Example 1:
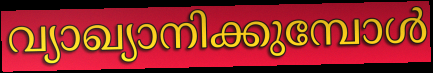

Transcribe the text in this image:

വ്യാഖ്യാനിക്കുമ്പോൾ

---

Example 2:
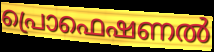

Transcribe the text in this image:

പ്രൊഫെഷണൽ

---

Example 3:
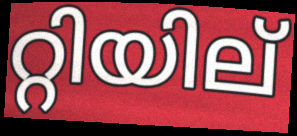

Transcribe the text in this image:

റ്റിയില്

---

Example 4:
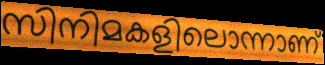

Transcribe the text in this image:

സിനിമകളിലൊന്നാണ്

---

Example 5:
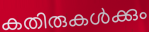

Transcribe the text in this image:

കതിരുകൾക്കും